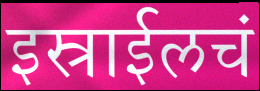
इस्राईलचं